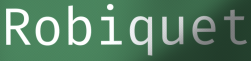
Robiquet